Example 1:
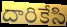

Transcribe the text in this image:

దారికేసి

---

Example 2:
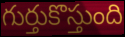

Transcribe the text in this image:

గుర్తుకొస్తుంది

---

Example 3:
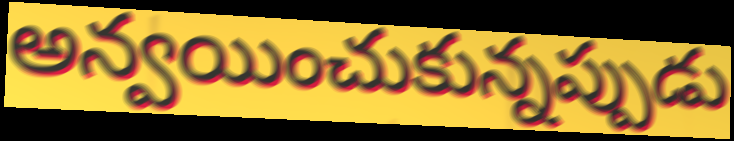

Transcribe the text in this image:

అన్వయించుకున్నప్పుడు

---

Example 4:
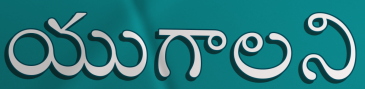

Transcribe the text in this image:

యుగాలని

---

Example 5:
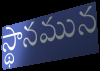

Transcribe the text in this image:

స్థానమున